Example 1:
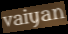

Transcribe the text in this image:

vaiyan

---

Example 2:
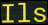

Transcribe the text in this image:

Ils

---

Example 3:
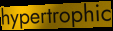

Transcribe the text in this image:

hypertrophic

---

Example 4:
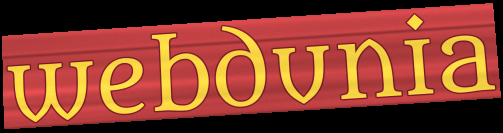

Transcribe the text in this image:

webdunia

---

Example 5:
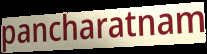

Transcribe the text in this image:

pancharatnam